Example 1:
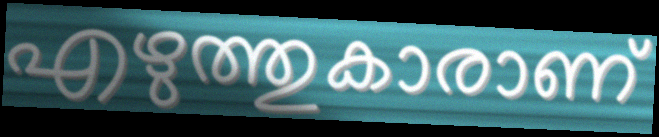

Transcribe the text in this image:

എഴുത്തുകാരാണ്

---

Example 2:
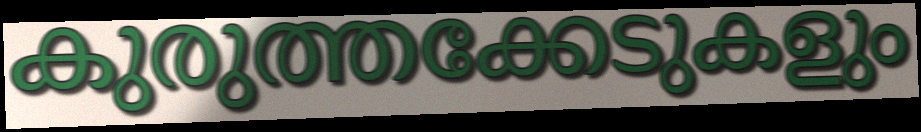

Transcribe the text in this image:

കുരുത്തക്കേടുകളും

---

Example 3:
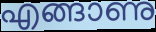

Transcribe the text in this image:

എങ്ങാണു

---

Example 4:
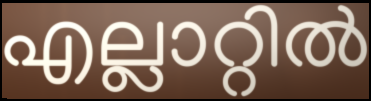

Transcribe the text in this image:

എല്ലാറ്റിൽ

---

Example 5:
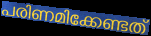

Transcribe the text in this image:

പരിണമിക്കേണ്ടത്